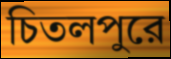
চিতলপুরে